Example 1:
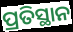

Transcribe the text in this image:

ପ୍ରତିସ୍ଥାନ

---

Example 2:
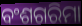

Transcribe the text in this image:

ବଂଶଗରିମା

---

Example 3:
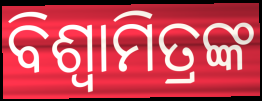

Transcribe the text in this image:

ବିଶ୍ବାମିତ୍ରଙ୍କ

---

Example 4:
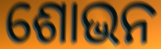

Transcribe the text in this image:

ଶୋଭନ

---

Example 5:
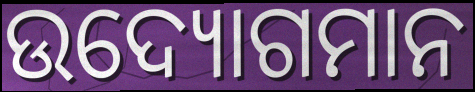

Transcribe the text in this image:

ଉଦ୍ୟୋଗମାନ